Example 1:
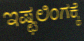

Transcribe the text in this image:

ಇಷ್ಟಲಿಂಗಕ್ಕೆ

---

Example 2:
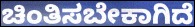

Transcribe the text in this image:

ಚಿಂತಿಸಬೇಕಾಗಿದೆ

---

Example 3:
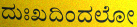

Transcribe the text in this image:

ದುಃಖದಿಂದಲೋ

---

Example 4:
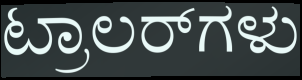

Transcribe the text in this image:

ಟ್ರಾಲರ್‌ಗಳು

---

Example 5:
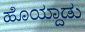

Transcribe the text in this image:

ಹೊಯ್ದಾಡು